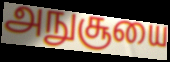
அநுசூயை